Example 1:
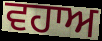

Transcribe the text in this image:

ਵਹਾਅ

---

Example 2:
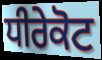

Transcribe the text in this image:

ਧੀਰੇਕੋਟ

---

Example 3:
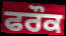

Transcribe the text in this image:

ਫਰੌਕ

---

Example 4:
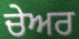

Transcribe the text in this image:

ਚੇਅਰ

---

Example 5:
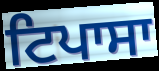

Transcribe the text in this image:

ਟਿਪਾਸਾ